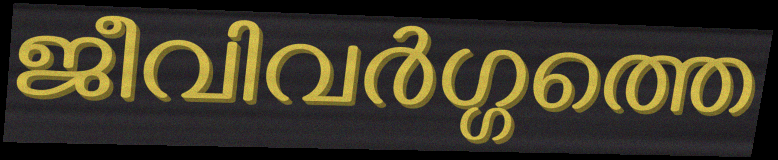
ജീവിവർഗ്ഗത്തെ